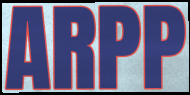
ARPP